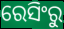
ରେସିଂରୁ